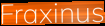
Fraxinus